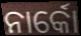
ନାର୍କୋ